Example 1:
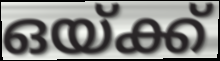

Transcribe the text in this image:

ഒയ്ക്ക്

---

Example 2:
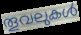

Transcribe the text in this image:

തൂവലുകൾ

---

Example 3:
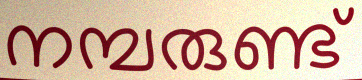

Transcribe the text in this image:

നമ്പരുണ്ട്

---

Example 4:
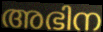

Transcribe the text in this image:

അഭിന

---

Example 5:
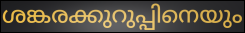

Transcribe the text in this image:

ശങ്കരക്കുറുപ്പിനെയും